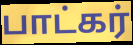
பாட்கர்